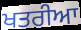
ਖਤਰੀਆ